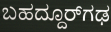
ಬಹದ್ದೂರ್‌ಗಢ